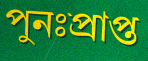
পুনঃপ্রাপ্ত